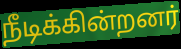
நீடிக்கின்றனர்